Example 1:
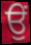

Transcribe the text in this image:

ਉਂ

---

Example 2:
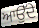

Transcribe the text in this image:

ਆਉੱਦੇ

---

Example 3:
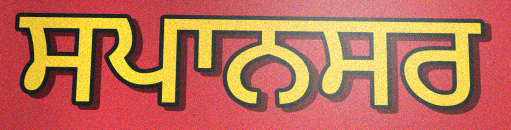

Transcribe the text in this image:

ਸਪਾਨਸਰ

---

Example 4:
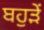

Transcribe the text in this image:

ਬਹੁੜੇਂ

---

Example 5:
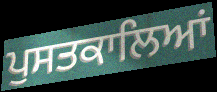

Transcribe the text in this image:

ਪੁਸਤਕਾਲਿਆਂ